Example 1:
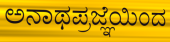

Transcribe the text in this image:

ಅನಾಥಪ್ರಜ್ಞೆಯಿಂದ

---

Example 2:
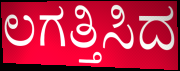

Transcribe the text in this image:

ಲಗತ್ತಿಸಿದ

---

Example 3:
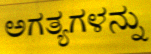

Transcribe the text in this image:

ಅಗತ್ಯಗಳನ್ನು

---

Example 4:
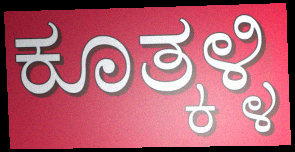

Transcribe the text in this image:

ಕೂತ್ಕಳ್ಳಿ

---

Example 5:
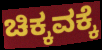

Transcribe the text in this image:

ಚಿಕ್ಕವಕ್ಕೆ